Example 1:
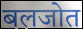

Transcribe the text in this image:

बलजोत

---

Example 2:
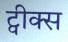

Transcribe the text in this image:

ट्वीक्स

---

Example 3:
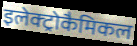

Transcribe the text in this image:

इलेक्ट्रोकैमिकल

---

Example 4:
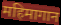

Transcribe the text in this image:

महिमागान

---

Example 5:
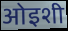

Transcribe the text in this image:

ओइशी